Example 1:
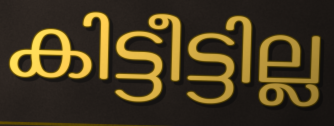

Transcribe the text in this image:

കിട്ടീട്ടില്ല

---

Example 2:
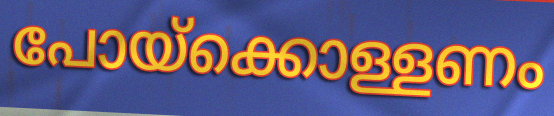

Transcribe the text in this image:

പോയ്ക്കൊള്ളണം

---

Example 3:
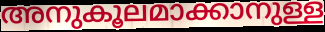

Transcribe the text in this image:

അനുകൂലമാക്കാനുള്ള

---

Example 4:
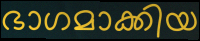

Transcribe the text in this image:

ഭാഗമാക്കിയ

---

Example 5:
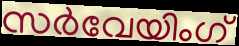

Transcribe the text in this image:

സർവേയിംഗ്